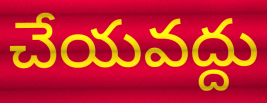
చేయవద్దు